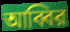
আব্বির